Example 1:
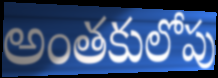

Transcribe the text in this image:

అంతకులోపు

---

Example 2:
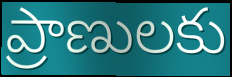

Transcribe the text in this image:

ప్రాణులకు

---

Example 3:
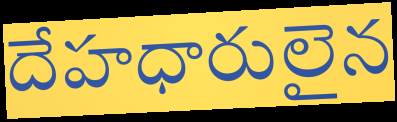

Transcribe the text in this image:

దేహధారులైన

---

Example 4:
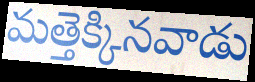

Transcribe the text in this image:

మత్తెక్కినవాడు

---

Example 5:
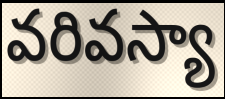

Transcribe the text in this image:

వరివస్యా